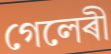
গেলেৰী